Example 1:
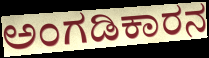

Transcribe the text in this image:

ಅಂಗಡಿಕಾರನ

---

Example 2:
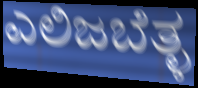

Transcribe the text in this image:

ಎಲಿಜಬೆತ್ಳ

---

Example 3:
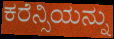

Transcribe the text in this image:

ಕರೆನ್ಸಿಯನ್ನು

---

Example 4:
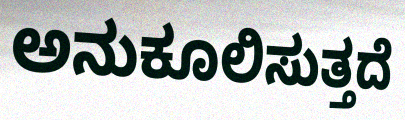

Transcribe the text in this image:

ಅನುಕೂಲಿಸುತ್ತದೆ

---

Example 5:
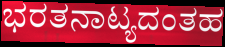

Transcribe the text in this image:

ಭರತನಾಟ್ಯದಂತಹ